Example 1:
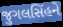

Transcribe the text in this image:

જુગલસિંહને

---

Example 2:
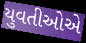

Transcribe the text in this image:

યુવતીઓએ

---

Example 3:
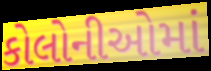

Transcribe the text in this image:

કોલોનીઓમાં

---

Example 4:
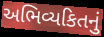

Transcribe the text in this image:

અભિવ્યકિતનું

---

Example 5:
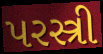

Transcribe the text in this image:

પરસ્ત્રી